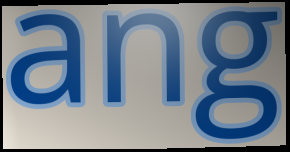
ang